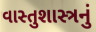
વાસ્તુશાસ્ત્રનું